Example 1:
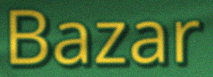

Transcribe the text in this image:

Bazar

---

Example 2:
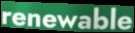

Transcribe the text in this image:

renewable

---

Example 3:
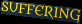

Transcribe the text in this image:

SUFFERING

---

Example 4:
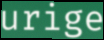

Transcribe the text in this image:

urige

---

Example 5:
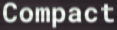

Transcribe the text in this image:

Compact